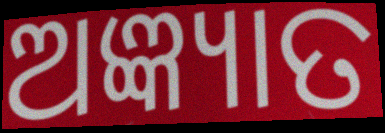
ଅଜ୍ଞ୍ୟାତ